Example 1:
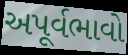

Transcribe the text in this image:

અપૂર્વભાવો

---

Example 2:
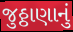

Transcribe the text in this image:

જુઠ્ઠાણાનું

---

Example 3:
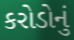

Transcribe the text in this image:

કરોડોનું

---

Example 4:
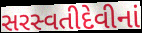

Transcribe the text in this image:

સરસ્વતીદેવીનાં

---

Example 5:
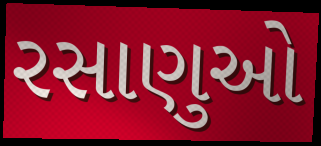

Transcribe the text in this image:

રસાણુઓ